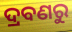
ଦ୍ରବଣରୁ